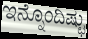
ಇನ್ನೊಂದಿಷ್ಟು